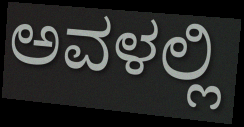
ಅವಳಲ್ಲಿ